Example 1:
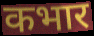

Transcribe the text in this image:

कभार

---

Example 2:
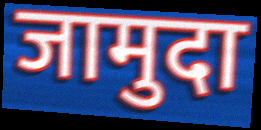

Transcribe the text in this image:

जामुदा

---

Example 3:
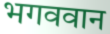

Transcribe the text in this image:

भगववान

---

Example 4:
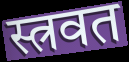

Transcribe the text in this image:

स्त्रवत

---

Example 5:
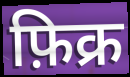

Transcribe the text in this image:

फ़िक्र